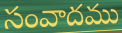
సంవాదము